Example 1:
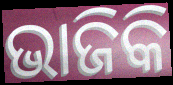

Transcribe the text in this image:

ଭାଜିକି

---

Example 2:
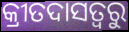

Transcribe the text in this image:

କ୍ରୀତଦାସତ୍ୱରୁ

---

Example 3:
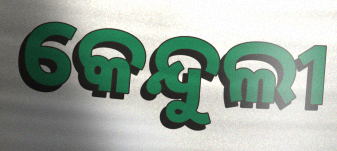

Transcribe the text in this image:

କେନ୍ଦୁଲୀ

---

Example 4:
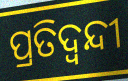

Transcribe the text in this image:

ପ୍ରତିଦ୍ଵନ୍ଦୀ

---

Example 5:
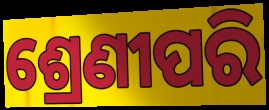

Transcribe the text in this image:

ଶ୍ରେଣୀପରି